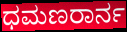
ಧಮಣರಾರ್ನ